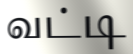
வட்டி